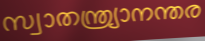
സ്വാതന്ത്ര്യാനന്തര